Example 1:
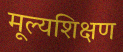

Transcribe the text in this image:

मूल्यशिक्षण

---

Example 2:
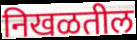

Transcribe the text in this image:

निखळतील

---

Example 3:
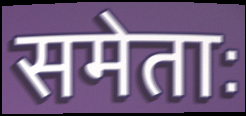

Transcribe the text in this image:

समेताः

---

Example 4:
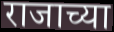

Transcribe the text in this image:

राजाच्या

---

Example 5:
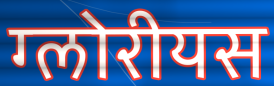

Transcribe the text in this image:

ग्लोरीयस